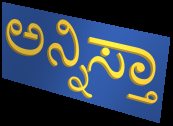
ಅನ್ನಿಸ್ತಾ